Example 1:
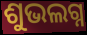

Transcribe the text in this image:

ଶୁଭଲଗ୍ନ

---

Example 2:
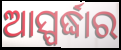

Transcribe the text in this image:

ଆସ୍ପର୍ଦ୍ଧାର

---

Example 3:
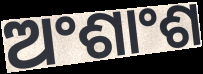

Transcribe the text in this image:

ଅଂଶାଂଶ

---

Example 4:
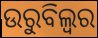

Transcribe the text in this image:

ଉରୁବିଲ୍ଵର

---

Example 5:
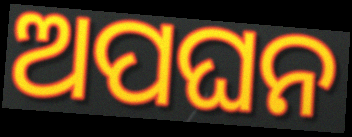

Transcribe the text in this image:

ଅପଘନ